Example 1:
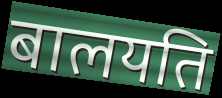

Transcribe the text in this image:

बालयति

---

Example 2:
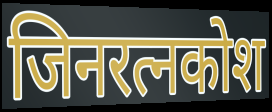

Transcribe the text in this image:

जिनरत्नकोश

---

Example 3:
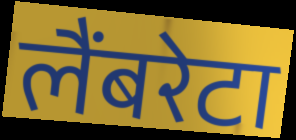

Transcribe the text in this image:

लैंबरेटा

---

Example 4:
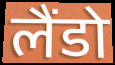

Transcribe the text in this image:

लैंडो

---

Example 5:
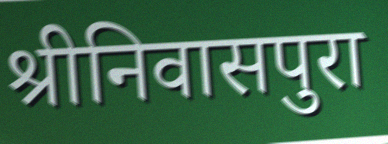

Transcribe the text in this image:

श्रीनिवासपुरा